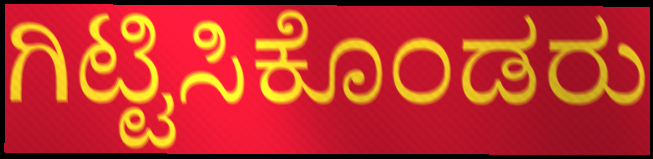
ಗಿಟ್ಟಿಸಿಕೊಂಡರು